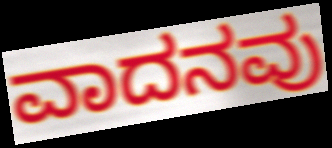
ವಾದನವು